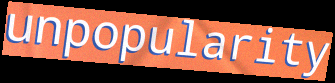
unpopularity